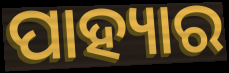
ପାହ୍ୟାର